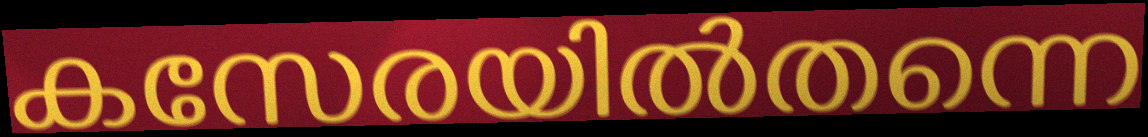
കസേരയിൽതന്നെ